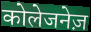
कोलेजनेज़